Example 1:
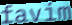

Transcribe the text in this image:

favim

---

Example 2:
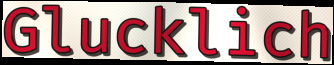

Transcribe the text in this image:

Glucklich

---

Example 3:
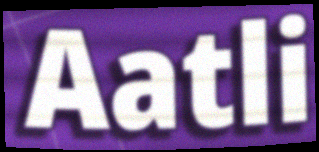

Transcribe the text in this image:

Aatli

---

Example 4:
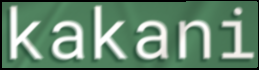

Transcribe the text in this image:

kakani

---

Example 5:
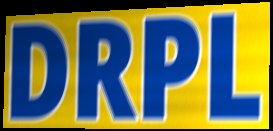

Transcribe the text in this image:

DRPL